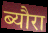
ब्‍यौरा